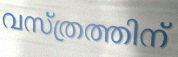
വസ്ത്രത്തിന്